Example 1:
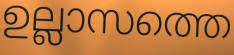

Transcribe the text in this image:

ഉല്ലാസത്തെ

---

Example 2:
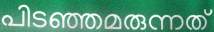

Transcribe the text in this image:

പിടഞ്ഞമരുന്നത്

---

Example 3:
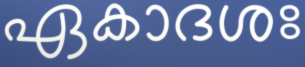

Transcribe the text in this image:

ഏകാദശഃ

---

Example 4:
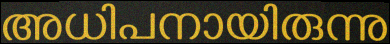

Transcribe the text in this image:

അധിപനായിരുന്നു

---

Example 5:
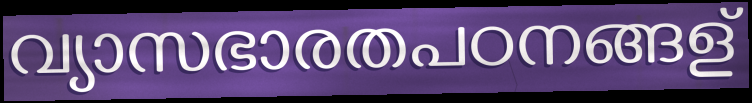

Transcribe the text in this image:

വ്യാസഭാരതപഠനങ്ങള്